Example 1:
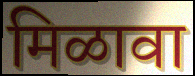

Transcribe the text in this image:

मिळावा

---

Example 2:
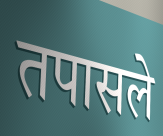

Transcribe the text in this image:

तपासले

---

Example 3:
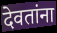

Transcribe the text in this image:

देवतांना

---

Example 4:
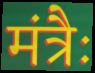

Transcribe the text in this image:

मंत्रैः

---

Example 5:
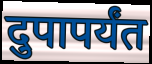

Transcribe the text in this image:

दुपापर्यंत